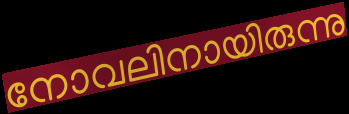
നോവലിനായിരുന്നു